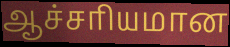
ஆச்சரியமான